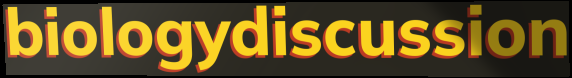
biologydiscussion